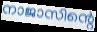
നാജാസിന്റെ